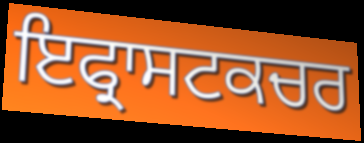
ਇਫ੍ਰਾਸਟਕਚਰ